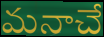
మనాచే